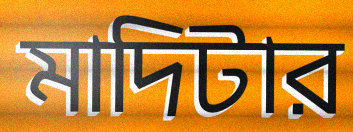
মাদিটার